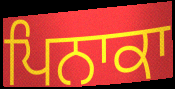
ਪਿਨਾਕਾ